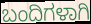
ಬಂದಿಗಳಾಗಿ